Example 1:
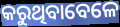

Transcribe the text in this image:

କରୁଥିବାବେଳେ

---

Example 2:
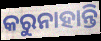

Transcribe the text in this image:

କରୁନାହାନ୍ତି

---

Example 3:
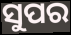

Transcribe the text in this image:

ସୁପର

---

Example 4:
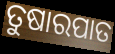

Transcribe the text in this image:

ତୁଷାରପାତ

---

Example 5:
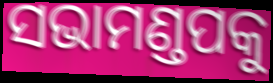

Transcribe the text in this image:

ସଭାମଣ୍ଡପକୁ